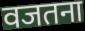
वजतना